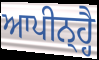
ਆਪੀਨ੍ਹ੍ਹੈ